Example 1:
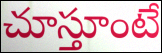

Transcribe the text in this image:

చూస్తూంటే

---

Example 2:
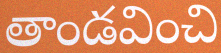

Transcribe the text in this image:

తాండవించి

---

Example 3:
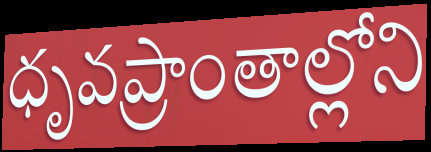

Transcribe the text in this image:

ధృవప్రాంతాల్లోని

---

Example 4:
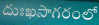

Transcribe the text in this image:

దుఃఖసాగరంలో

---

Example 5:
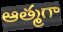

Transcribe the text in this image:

ఆత్మగా